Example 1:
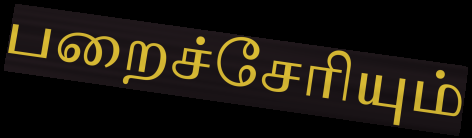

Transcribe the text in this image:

பறைச்சேரியும்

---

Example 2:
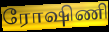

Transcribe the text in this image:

ரோஷிணி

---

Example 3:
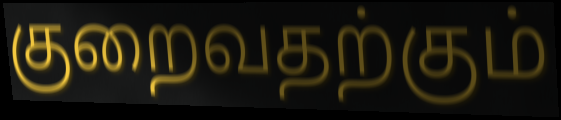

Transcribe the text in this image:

குறைவதற்கும்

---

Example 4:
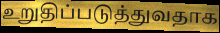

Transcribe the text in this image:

உறுதிப்படுத்துவதாக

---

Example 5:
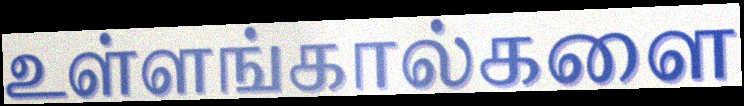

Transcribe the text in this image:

உள்ளங்கால்களை